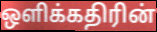
ஒளிக்கதிரின்